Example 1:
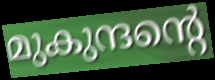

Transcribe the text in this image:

മുകുന്ദന്റെ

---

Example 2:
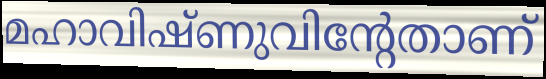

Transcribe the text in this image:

മഹാവിഷ്ണുവിന്റേതാണ്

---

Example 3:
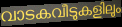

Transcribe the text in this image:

വാടകവീടുകളിലും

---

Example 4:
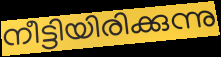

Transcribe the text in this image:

നീട്ടിയിരിക്കുന്നു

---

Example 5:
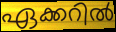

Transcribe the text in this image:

ഏക്കറിൽ